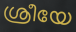
ശ്രീയേ